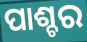
ପାଶ୍ଚର